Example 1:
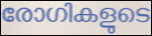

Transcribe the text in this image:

രോഗികളുടെ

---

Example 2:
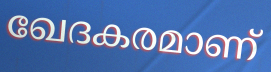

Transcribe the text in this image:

ഖേദകരമാണ്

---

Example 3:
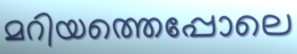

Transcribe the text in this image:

മറിയത്തെപ്പോലെ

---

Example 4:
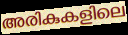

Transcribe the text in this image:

അരികുകളിലെ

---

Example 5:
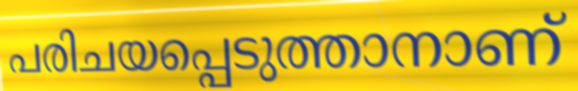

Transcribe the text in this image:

പരിചയപ്പെടുത്താനാണ്